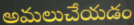
అమలుచేయడం